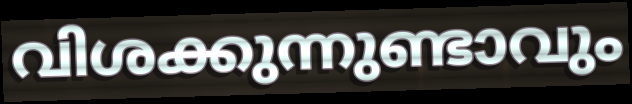
വിശക്കുന്നുണ്ടാവും